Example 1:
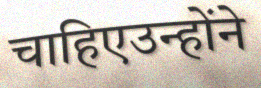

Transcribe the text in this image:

चाहिएउन्होंने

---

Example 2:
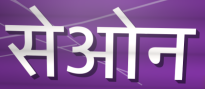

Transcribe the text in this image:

सेओन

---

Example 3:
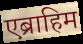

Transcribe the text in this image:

एब्राहिम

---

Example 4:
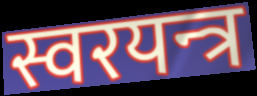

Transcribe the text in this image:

स्वरयन्त्र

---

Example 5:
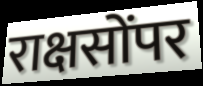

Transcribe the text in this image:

राक्षसोंपर